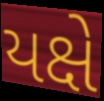
યક્ષે